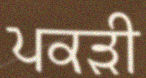
ਪਕੜੀ